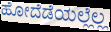
ಹೋದೆಡೆಯಲ್ಲೆಲ್ಲ